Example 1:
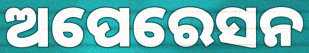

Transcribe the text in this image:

ଅପେରେସନ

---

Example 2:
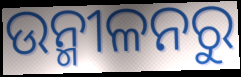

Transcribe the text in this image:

ଉନ୍ମୀଳନରୁ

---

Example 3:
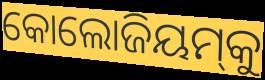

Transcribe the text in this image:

କୋଲୋଜିୟମ୍‍କୁ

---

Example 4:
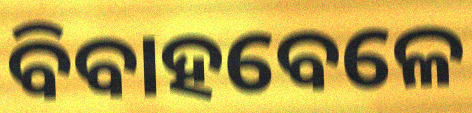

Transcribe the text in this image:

ବିବାହବେଳେ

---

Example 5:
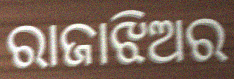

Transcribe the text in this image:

ରାଜାଝିଅର